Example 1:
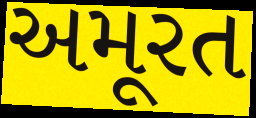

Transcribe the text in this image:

અમૂરત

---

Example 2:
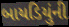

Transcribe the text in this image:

બાયડિયુંની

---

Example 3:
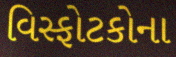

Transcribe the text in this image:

વિસ્ફોટકોના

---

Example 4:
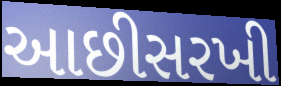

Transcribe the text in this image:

આછીસરખી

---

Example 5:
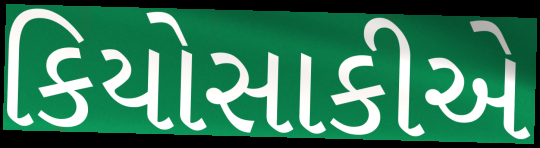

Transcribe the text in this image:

કિયોસાકીએ